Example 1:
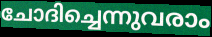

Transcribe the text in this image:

ചോദിച്ചെന്നുവരാം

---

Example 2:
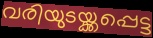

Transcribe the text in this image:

വരിയുടയ്ക്കപ്പെട്ട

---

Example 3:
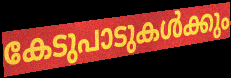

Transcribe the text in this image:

കേടുപാടുകൾക്കും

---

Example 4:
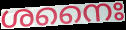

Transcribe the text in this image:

ശനൈഃ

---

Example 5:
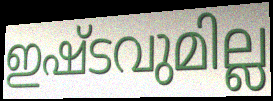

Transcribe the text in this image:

ഇഷ്ടവുമില്ല